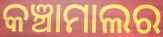
କଞ୍ଚାମାଲର